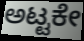
ಅಟ್ಟಕೇ